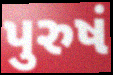
પુરુષં